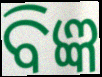
ବିଜ୍ଞ